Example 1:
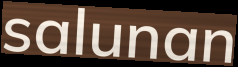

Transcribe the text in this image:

salunan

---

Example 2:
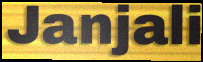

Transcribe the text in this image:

Janjali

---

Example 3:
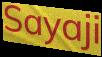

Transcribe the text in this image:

Sayaji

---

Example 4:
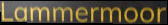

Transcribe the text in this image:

Lammermoor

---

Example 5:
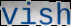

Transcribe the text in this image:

vish